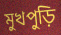
মুখপুড়ি